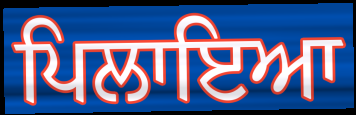
ਪਿਲਾਇਆ